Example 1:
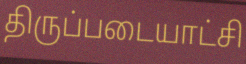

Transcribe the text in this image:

திருப்படையாட்சி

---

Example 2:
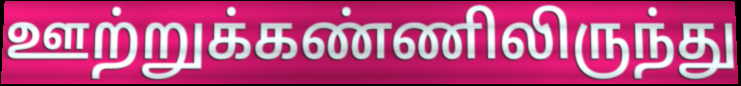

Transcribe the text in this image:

ஊற்றுக்கண்ணிலிருந்து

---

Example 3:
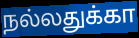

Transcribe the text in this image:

நல்லதுக்கா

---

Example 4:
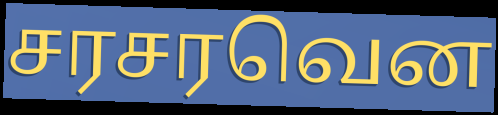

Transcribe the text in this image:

சரசரவென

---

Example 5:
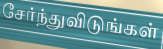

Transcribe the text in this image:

சேர்ந்துவிடுங்கள்